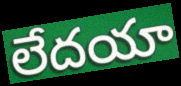
లేదయా